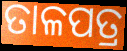
ତାଳପତ୍ର